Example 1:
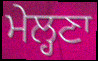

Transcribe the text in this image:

ਮੇਲ੍ਹਣਾ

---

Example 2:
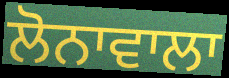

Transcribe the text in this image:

ਲੋਨਾਵਾਲਾ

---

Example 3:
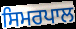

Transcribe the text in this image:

ਸਿਮਰਪਾਲ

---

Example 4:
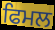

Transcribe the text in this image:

ਫਿਮਲ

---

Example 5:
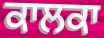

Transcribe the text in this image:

ਕਾਲਕਾ